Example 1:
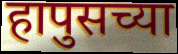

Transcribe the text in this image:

हापुसच्या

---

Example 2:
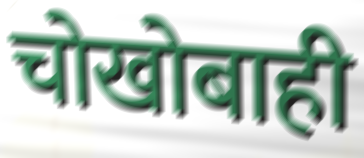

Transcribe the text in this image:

चोखोबाही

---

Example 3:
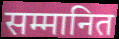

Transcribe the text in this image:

सम्मानित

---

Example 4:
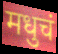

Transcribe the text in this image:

मधुचं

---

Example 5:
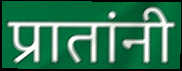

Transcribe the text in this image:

प्रातांनी